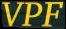
VPF